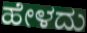
ಹೇಳದು